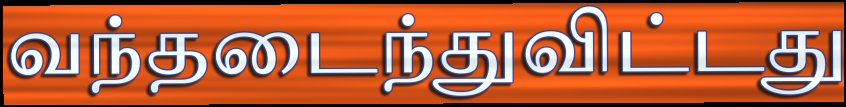
வந்தடைந்துவிட்டது